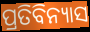
ପ୍ରତିବିନ୍ୟାସ